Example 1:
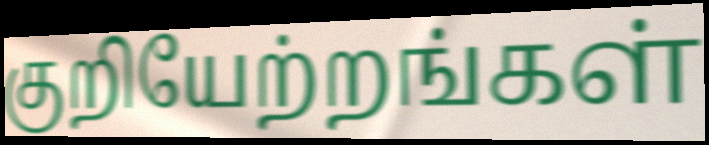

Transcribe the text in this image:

குறியேற்றங்கள்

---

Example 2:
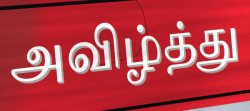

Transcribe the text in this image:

அவிழ்த்து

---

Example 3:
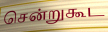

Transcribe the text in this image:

சென்றுகூட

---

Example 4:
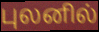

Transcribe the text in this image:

புலனில்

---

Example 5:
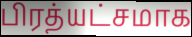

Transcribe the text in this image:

பிரத்யட்சமாக